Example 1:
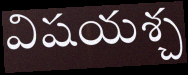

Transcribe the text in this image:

విషయశ్చ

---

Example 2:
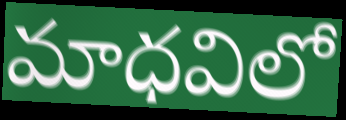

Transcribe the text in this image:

మాధవిలో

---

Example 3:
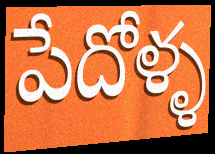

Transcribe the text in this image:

పేదోళ్ళ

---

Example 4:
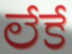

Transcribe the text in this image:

లేకే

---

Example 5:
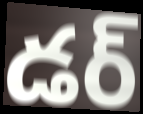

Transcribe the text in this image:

డర్